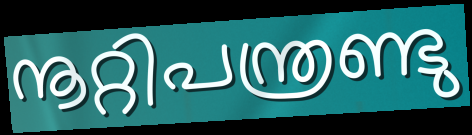
നൂറ്റിപന്ത്രണ്ടു